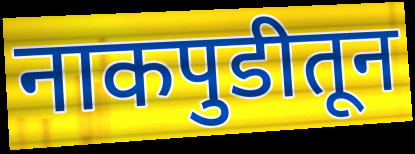
नाकपुडीतून